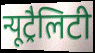
न्यूट्रैलिटी